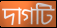
দাগটি